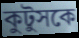
কুটুসকে